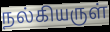
நல்கியருள்